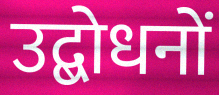
उद्बोधनों